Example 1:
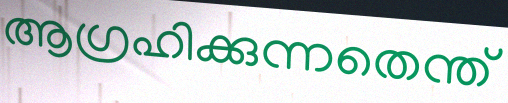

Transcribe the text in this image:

ആഗ്രഹിക്കുന്നതെന്ത്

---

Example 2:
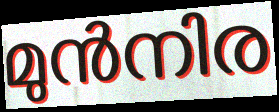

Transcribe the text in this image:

മുൻനിര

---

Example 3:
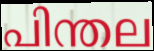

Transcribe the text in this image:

പിന്തല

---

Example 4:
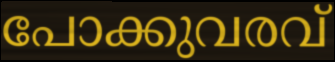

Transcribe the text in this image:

പോക്കുവരവ്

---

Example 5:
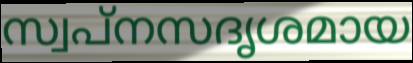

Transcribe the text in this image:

സ്വപ്നസദൃശമായ